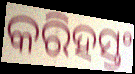
କରିହସ୍ତଂ